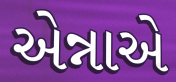
એન્નાએ